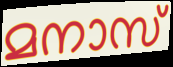
മനാസ്